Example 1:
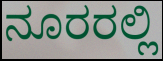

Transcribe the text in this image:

ನೂರರಲ್ಲಿ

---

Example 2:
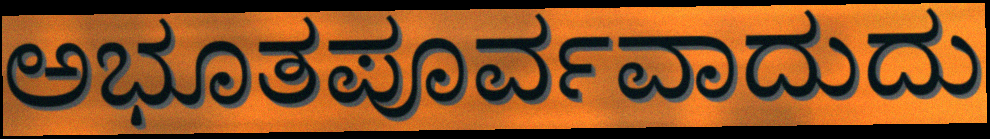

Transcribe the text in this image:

ಅಭೂತಪೂರ್ವವಾದುದು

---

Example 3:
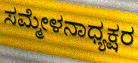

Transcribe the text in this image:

ಸಮ್ಮೇಳನಾಧ್ಯಕ್ಷರ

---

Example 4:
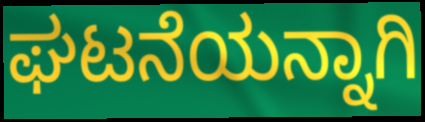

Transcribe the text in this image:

ಘಟನೆಯನ್ನಾಗಿ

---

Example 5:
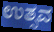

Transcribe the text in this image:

ಉತ್ಸವ